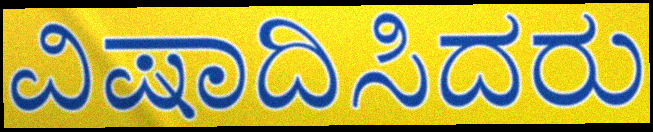
ವಿಷಾದಿಸಿದರು